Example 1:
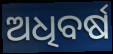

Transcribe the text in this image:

ଅଧିବର୍ଷ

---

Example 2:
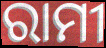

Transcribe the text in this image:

ରାମୀ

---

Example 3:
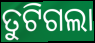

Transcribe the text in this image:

ତୁଟିଗଲା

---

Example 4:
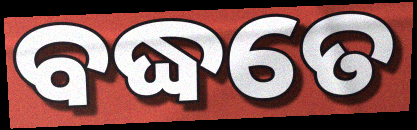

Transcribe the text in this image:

ବଦ୍ଧତେ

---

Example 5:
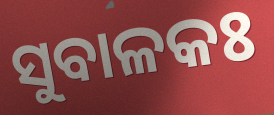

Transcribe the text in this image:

ସୁବାଳକଃ